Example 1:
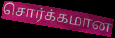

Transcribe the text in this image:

சொர்க்கமான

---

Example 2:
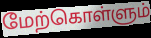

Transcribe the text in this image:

மேற்கொள்ளும்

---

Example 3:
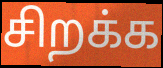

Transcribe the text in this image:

சிறக்க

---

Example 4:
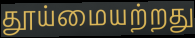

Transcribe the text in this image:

தூய்மையற்றது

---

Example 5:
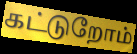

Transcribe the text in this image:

கட்டுறோம்